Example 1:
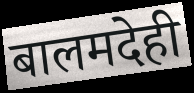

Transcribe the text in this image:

बालमदेही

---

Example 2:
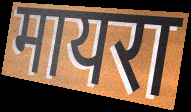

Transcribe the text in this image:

मायरा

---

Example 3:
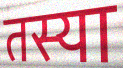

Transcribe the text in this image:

तस्या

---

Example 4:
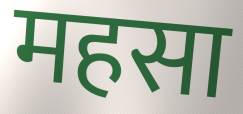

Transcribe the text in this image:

महसा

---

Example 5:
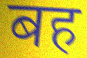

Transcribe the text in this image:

बह